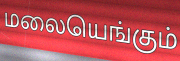
மலையெங்கும்